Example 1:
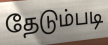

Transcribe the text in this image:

தேடும்படி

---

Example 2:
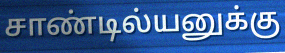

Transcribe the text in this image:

சாண்டில்யனுக்கு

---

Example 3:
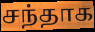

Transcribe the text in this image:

சந்தாக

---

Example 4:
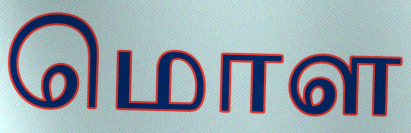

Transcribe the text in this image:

மொள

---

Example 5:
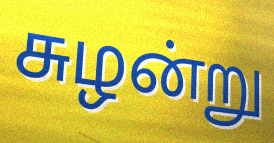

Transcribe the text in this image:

சுழன்று